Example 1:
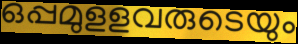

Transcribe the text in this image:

ഒപ്പമുളളവരുടെയും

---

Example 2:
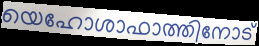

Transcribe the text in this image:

യെഹോശാഫാത്തിനോട്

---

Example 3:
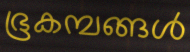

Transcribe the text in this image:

ഭൂകമ്പങ്ങൾ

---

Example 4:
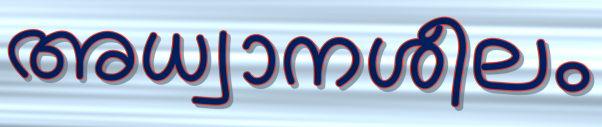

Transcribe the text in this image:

അധ്വാനശീലം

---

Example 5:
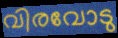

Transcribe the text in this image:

വിരവോടു